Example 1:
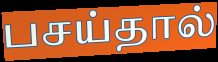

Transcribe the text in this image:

பசய்தால்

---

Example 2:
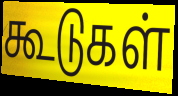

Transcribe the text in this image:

கூடுகள்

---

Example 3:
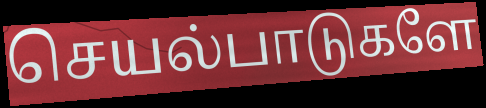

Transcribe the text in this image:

செயல்பாடுகளே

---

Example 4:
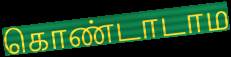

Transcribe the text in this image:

கொண்டாடாம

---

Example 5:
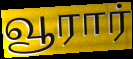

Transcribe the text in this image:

வூரார்